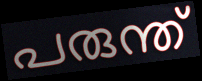
പരുന്ത്